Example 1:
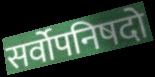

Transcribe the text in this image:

सर्वोपनिषदो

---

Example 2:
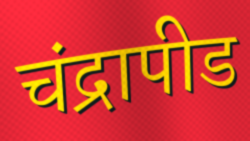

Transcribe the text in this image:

चंद्रापीड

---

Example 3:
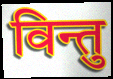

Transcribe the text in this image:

विन्तु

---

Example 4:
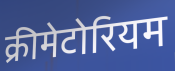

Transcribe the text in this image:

क्रीमेटोरियम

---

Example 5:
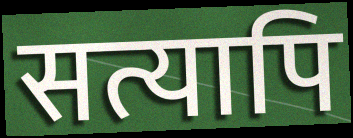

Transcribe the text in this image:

सत्यापि